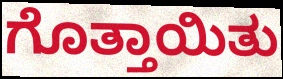
ಗೊತ್ತಾಯಿತು